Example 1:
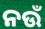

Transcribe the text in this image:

ନଉଁ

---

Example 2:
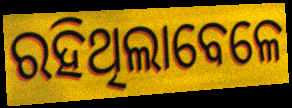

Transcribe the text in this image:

ରହିଥିଲାବେଳେ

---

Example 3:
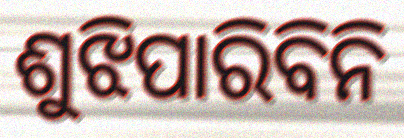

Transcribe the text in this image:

ଶୁଝିପାରିବିନି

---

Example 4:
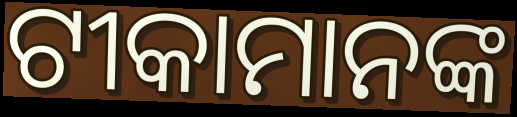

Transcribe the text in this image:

ଟୀକାମାନଙ୍କ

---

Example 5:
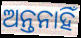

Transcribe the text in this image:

ଅନ୍ତନାହିଁ